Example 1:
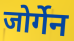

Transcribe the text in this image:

जोर्गेन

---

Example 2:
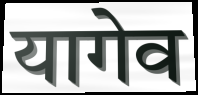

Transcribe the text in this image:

यागेव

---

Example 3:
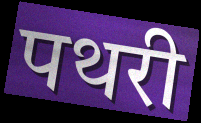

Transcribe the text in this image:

पथरी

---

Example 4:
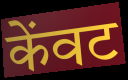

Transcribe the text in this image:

केंवट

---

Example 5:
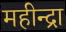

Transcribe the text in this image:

महीन्द्रा